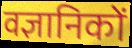
वज्ञानिकों